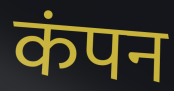
कंपन